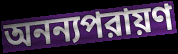
অনন্যপরায়ণ